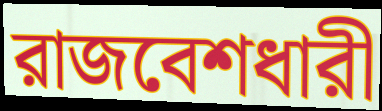
রাজবেশধারী